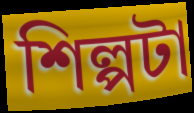
শিল্পটা